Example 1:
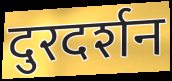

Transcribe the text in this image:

दुरदर्शन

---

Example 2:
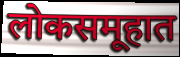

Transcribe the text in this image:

लोकसमूहात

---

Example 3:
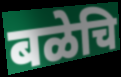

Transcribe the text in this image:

बळेचि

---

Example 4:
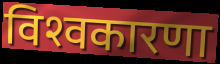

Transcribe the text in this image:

विश्वकारणा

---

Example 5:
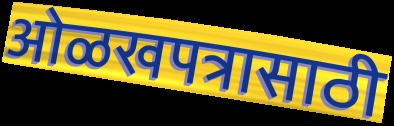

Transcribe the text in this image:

ओळखपत्रासाठी